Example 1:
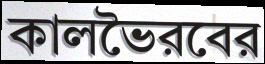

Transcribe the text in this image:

কালভৈরবের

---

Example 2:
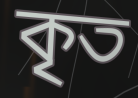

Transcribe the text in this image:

কৃত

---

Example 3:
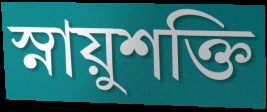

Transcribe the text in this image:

স্নায়ুশক্তি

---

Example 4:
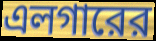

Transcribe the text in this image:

এলগারের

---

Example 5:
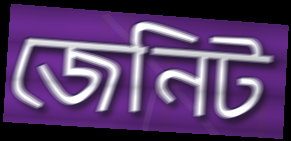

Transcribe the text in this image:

জেনিট